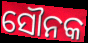
ସୌନକ